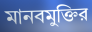
মানবমুক্তির